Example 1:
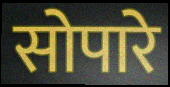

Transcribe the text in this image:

सोपारे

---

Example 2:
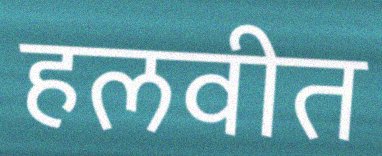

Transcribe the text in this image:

हलवीत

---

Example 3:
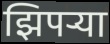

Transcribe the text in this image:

झिपऱ्या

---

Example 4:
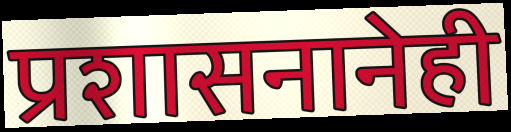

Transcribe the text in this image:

प्रशासनानेही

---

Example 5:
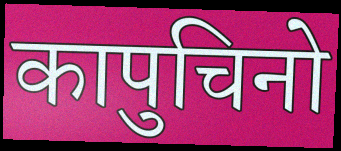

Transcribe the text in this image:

कापुचिनो